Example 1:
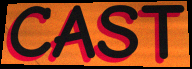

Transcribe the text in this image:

CAST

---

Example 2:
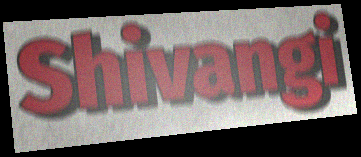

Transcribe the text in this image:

Shivangi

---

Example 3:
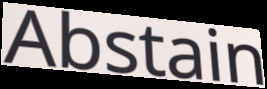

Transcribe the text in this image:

Abstain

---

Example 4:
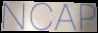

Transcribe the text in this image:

NCAP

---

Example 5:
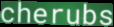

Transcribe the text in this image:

cherubs